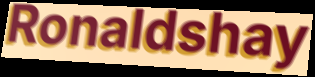
Ronaldshay